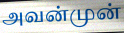
அவன்முன்